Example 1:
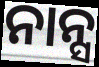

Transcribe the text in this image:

ନାନ୍ସ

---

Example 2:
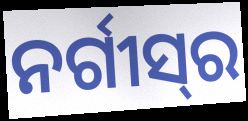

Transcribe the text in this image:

ନର୍ଗୀସ୍‍ର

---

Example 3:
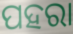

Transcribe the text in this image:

ପହରା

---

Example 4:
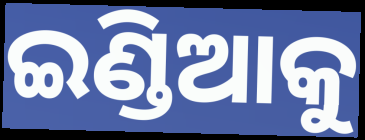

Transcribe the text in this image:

ଇଣ୍ଡିଆକୁ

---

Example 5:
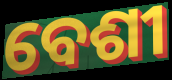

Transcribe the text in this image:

ବେଶୀ